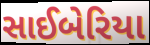
સાઈબેરિયા